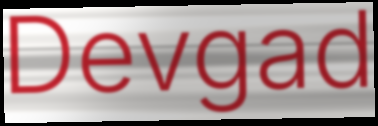
Devgad